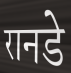
रानडे